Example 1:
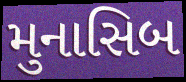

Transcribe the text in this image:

મુનાસિબ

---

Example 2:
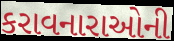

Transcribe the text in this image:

કરાવનારાઓની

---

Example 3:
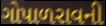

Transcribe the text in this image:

ગોપાળરાવની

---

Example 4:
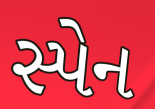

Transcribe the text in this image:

સ્પેન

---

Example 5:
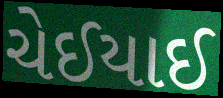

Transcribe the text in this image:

ચેઈયાઈ